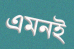
এমনই